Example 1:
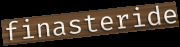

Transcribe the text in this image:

finasteride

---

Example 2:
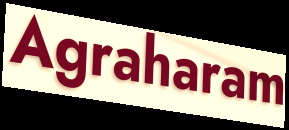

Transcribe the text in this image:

Agraharam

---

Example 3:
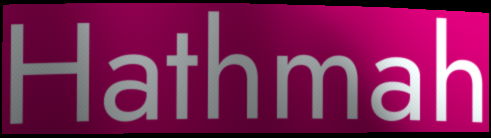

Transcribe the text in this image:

Hathmah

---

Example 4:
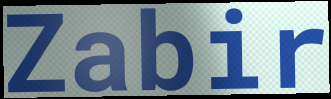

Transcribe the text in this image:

Zabir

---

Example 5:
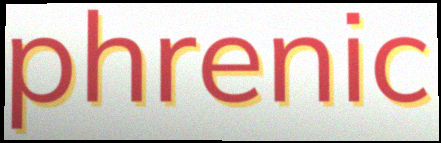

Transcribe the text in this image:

phrenic